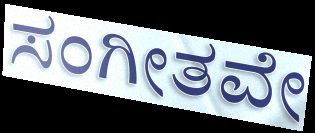
ಸಂಗೀತವೇ